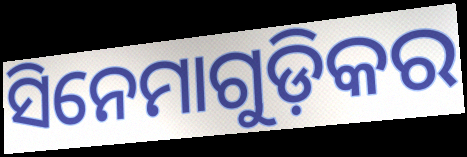
ସିନେମାଗୁଡ଼ିକର